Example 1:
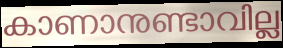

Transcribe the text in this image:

കാണാനുണ്ടാവില്ല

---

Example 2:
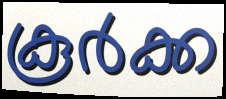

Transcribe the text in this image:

കൂർക്ക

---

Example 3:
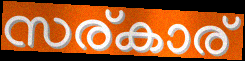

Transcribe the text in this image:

സര്കാര്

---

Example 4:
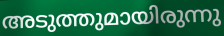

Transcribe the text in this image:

അടുത്തുമായിരുന്നു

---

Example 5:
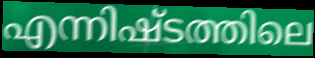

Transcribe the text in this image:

എന്നിഷ്ടത്തിലെ